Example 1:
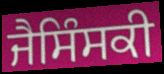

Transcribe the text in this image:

ਜੈਸਿੰਸਕੀ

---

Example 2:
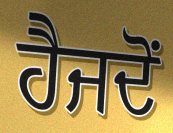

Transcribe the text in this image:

ਹੈਜਦੋਂ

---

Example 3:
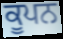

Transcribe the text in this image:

ਕੂਪਨ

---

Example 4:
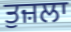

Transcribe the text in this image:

ਤੁਜ਼ਲਾ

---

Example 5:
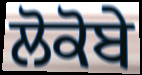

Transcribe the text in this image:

ਲੋਕੋਬੇ